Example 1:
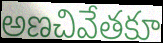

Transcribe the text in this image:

అణచివేతకూ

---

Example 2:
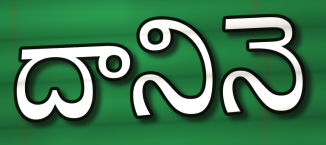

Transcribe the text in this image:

దానినె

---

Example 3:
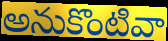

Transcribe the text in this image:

అనుకొంటివా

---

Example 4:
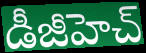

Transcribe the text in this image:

డీజీహెచ్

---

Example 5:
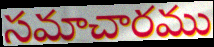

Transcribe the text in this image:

సమాచారము